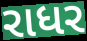
રાધર